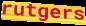
rutgers